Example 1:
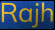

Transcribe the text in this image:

Rajh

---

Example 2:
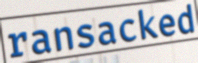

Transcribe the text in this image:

ransacked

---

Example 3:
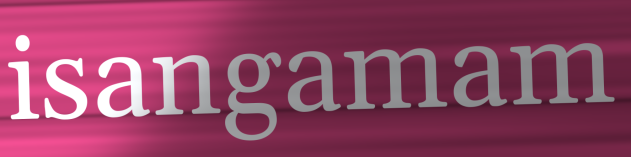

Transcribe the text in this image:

isangamam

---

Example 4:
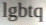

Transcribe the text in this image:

lgbtq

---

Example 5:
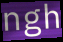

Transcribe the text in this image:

ngh